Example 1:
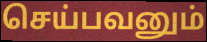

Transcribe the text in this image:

செய்பவனும்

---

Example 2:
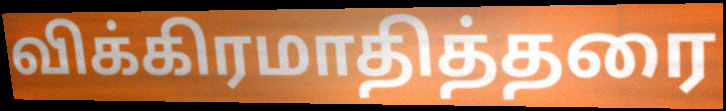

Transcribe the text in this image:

விக்கிரமாதித்தரை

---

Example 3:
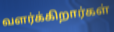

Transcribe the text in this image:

வளர்க்கிறார்கள்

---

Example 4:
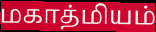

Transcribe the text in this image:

மகாத்மியம்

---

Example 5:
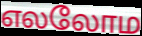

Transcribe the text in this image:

எலலோம